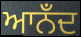
ਆਨਁਦ